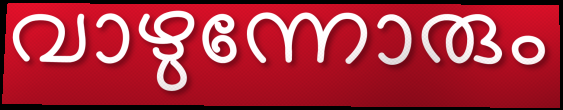
വാഴുന്നോരും